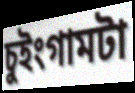
চুইংগামটা